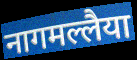
नागमल्लैया